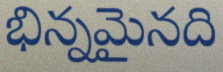
భిన్నమైనది